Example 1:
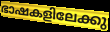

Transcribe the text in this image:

ഭാഷകളിലേക്കു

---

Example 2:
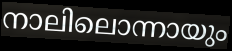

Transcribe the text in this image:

നാലിലൊന്നായും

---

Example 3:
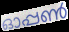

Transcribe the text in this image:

ഓപ്പൺ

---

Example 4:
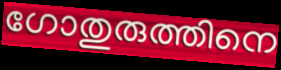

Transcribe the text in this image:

ഗോതുരുത്തിനെ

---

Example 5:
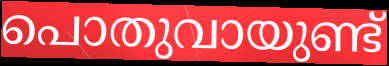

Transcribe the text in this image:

പൊതുവായുണ്ട്